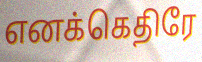
எனக்கெதிரே